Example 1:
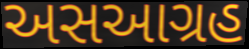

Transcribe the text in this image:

અસઆગ્રહ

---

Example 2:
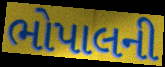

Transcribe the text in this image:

ભોપાલની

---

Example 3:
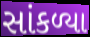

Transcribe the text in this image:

સાંકળ્યા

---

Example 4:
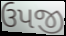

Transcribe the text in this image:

ઉપજી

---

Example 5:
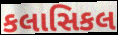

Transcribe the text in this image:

કલાસિકલ